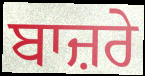
ਬਾਜ਼ਰੇ